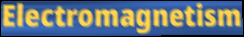
Electromagnetism